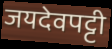
जयदेवपट्टी